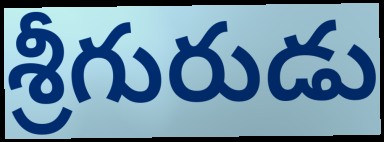
శ్రీగురుడు